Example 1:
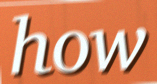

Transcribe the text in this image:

how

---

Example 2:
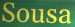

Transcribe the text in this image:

Sousa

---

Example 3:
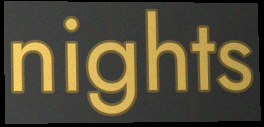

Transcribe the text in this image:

nights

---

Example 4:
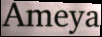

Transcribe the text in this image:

Ameya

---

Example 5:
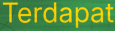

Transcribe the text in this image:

Terdapat